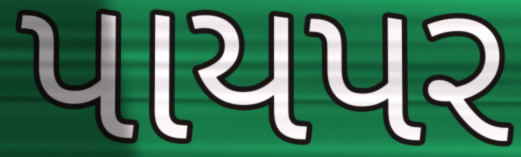
પાયપર